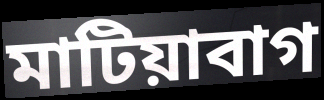
মাটিয়াবাগ